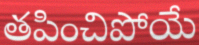
తపించిపోయే